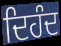
ਦਿਹੰਦ